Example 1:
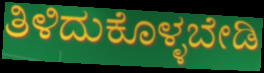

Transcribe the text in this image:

ತಿಳಿದುಕೊಳ್ಳಬೇಡಿ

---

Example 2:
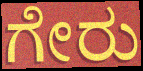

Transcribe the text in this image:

ಗೇರು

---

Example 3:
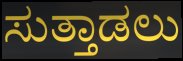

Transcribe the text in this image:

ಸುತ್ತಾಡಲು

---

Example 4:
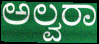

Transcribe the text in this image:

ಅಲ್ವರಾ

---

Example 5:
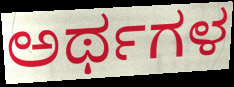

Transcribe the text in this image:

ಅರ್ಥಗಳ